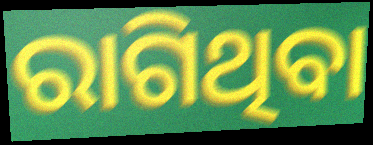
ରାଗିଥିବା